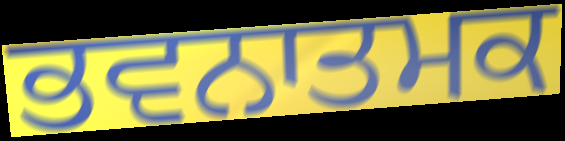
ਭਵਨਾਤਮਕ